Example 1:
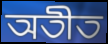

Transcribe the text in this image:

অতীত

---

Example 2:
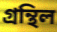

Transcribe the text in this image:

গ্ৰন্থিল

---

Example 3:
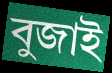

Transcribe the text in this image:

বুজাই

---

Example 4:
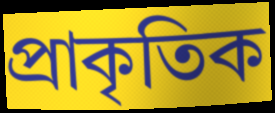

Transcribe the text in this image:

প্ৰাকৃতিক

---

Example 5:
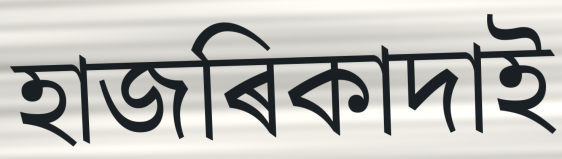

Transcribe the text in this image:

হাজৰিকাদাই